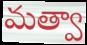
మత్వా